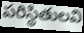
పరిస్థితులవి